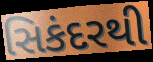
સિકંદરથી